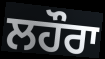
ਲਹੌਰਾ